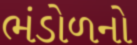
ભંડોળનો